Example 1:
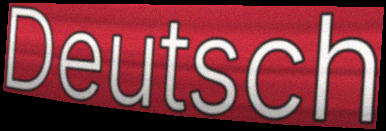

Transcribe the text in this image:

Deutsch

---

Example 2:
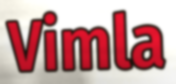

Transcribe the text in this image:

Vimla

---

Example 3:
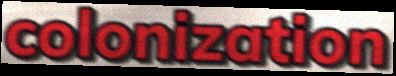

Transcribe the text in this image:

colonization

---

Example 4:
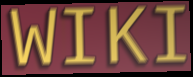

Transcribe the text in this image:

WIKI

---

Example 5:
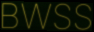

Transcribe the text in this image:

BWSS